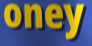
oney